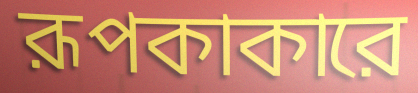
রূপকাকারে